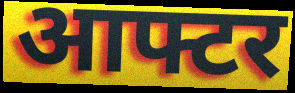
आफ्टर